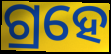
ଗ୍ରହେ